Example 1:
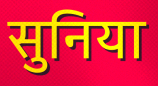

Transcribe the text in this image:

सुनिया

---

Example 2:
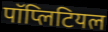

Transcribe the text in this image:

पॉप्लिटियल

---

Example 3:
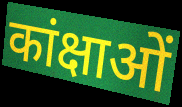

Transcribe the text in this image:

कांक्षाओं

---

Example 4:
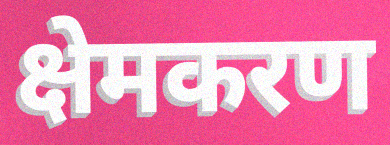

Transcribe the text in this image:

क्षेमकरण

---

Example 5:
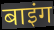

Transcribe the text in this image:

बाइंग